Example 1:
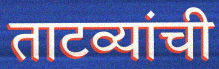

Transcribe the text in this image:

ताटव्यांची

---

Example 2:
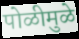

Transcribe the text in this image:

पोळीमुळे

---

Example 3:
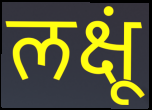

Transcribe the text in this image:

लक्षूं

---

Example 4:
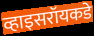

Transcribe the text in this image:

व्हाइसरॉयकडे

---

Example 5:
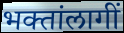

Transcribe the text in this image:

भक्तांलागीं